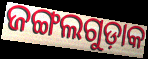
ଜଙ୍ଗଲଗୁଡ଼ାକ